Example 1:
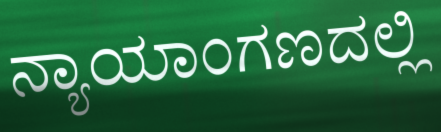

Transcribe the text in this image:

ನ್ಯಾಯಾಂಗಣದಲ್ಲಿ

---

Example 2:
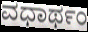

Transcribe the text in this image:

ವಧಾರ್ಥಂ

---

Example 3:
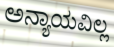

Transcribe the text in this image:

ಅನ್ಯಾಯವಿಲ್ಲ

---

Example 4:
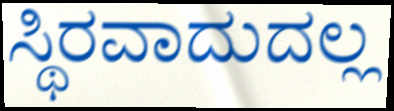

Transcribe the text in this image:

ಸ್ಥಿರವಾದುದಲ್ಲ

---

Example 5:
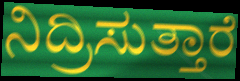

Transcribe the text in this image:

ನಿದ್ರಿಸುತ್ತಾರೆ